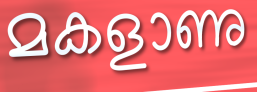
മകളാണു